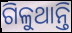
ଗିଳୁଥାନ୍ତି